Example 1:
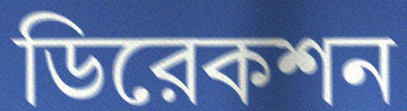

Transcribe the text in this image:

ডিরেকশন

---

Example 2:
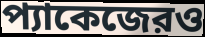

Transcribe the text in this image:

প্যাকেজেরও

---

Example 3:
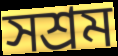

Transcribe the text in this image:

সশ্রম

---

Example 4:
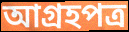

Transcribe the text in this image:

আগ্রহপত্র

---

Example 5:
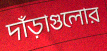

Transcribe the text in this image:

দাঁড়াগুলোর